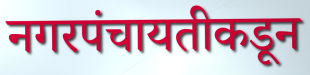
नगरपंचायतीकडून